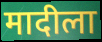
मादीला